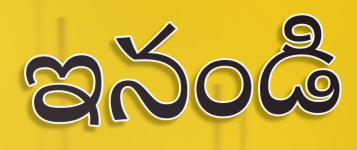
ఇనండి